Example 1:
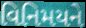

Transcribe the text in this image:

વિનિમયને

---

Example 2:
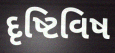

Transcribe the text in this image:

દૃષ્ટિવિષ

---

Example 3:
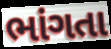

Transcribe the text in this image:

ભાંગતા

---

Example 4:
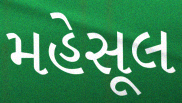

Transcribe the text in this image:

મહેસૂલ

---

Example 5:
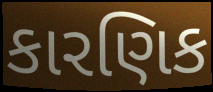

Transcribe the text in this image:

કારણિક